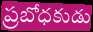
ప్రబోధకుడు